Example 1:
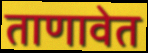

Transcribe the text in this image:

ताणावेत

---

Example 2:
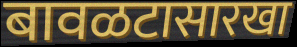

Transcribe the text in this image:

बावळटासारखा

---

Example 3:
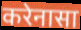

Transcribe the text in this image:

करेनासा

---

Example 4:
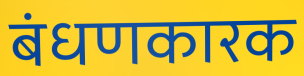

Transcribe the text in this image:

बंधणकारक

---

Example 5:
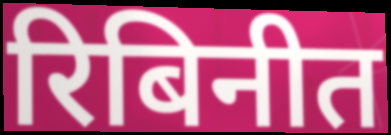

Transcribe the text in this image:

रिबिनीत